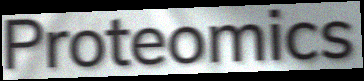
Proteomics